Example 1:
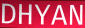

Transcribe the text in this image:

DHYAN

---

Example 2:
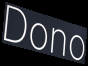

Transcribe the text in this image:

Dono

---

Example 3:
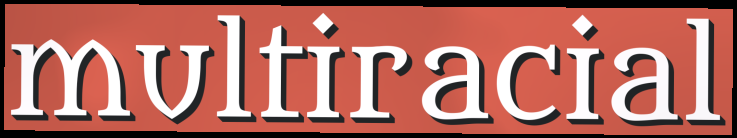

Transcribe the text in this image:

multiracial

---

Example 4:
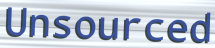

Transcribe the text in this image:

Unsourced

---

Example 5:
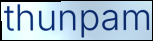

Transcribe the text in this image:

thunpam